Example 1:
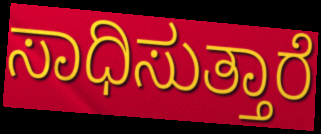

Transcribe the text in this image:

ಸಾಧಿಸುತ್ತಾರೆ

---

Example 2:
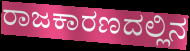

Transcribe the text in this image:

ರಾಜಕಾರಣದಲ್ಲಿನ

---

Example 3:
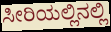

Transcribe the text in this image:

ಸೀರಿಯಲ್ಲಿನಲ್ಲಿ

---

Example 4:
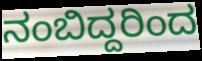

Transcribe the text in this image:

ನಂಬಿದ್ದರಿಂದ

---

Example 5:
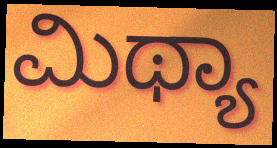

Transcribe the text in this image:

ಮಿಥ್ಯಾ